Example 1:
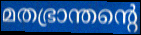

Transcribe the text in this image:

മതഭ്രാന്തന്റെ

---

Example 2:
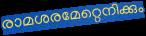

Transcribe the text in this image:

രാമശരമേറ്റെനിക്കും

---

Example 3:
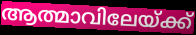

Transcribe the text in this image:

ആത്മാവിലേയ്ക്ക്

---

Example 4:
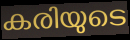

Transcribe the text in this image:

കരിയുടെ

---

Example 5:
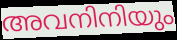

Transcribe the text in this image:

അവനിനിയും